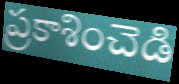
ప్రకాశించెడి